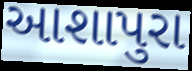
આશાપુરા